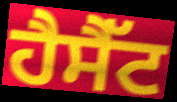
ਹੈਸੈੱਟ